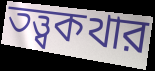
তত্ত্বকথার